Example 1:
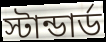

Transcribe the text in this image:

স্টান্ডার্ড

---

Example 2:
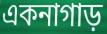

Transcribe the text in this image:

একনাগাড়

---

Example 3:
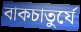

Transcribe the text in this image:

বাকচাতুর্যে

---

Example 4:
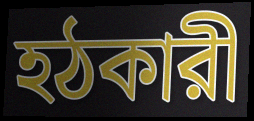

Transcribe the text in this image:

হঠকারী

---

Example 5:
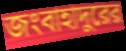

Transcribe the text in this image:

জংবাহাদুরের